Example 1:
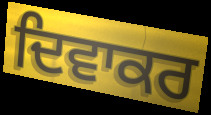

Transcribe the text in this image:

ਦਿਵਾਕਰ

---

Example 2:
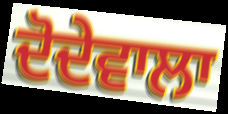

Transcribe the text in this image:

ਦੋਦੇਵਾਲਾ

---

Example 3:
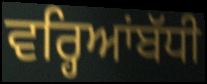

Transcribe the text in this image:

ਵਰ੍ਹਿਆਂਬੱਧੀ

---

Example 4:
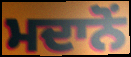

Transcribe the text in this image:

ਮਦਾਨੋਂ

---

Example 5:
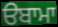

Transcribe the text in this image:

ੳਬਾਮਾ